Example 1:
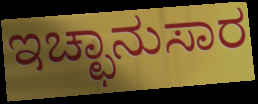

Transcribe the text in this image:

ಇಚ್ಛಾನುಸಾರ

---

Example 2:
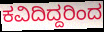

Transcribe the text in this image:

ಕವಿದಿದ್ದರಿಂದ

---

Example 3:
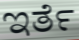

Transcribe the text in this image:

ಇರ್ತೆ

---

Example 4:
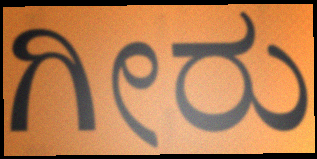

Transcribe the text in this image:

ಗೀರು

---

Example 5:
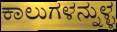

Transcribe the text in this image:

ಕಾಲುಗಳನ್ನುಳ್ಳ